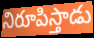
నిరూపిస్తాడు